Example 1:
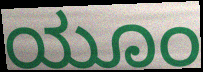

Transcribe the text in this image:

ಯೂಂ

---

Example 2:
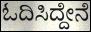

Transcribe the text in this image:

ಓದಿಸಿದ್ದೇನೆ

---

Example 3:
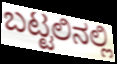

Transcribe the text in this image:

ಬಟ್ಟಲಿನಲ್ಲಿ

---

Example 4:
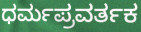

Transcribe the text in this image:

ಧರ್ಮಪ್ರವರ್ತಕ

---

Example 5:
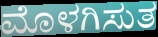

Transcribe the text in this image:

ಮೊಳಗಿಸುತ